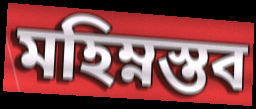
মহিম্নস্তব